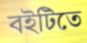
বইটিতে